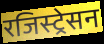
रजिस्ट्रेसन